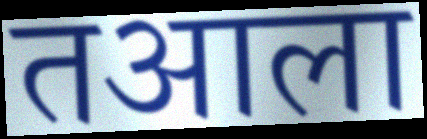
तआला